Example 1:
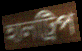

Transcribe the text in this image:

হালট্রিপ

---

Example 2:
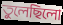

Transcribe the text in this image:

তুলেছিলো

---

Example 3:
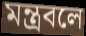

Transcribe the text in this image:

মন্ত্রবলে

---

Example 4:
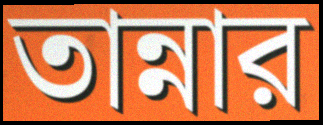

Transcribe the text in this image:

তান্নার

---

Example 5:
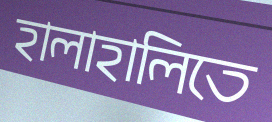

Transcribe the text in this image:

হালাহালিতে